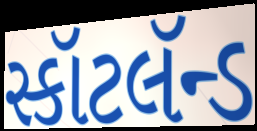
સ્કૉટલૅન્ડ